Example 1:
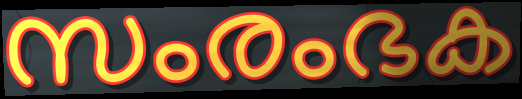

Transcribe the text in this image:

സംരംഭക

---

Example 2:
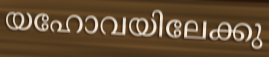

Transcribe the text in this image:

യഹോവയിലേക്കു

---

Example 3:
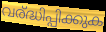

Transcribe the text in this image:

വര്ദ്ധിപ്പിക്കുക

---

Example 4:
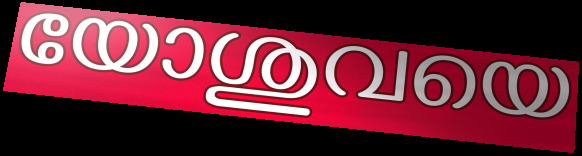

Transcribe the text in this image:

യോശുവയെ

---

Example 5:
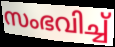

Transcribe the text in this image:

സംഭവിച്ച്